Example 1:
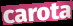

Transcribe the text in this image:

carota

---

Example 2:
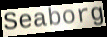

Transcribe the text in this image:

Seaborg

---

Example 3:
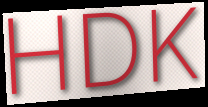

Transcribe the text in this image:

HDK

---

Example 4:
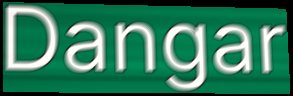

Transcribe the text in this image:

Dangar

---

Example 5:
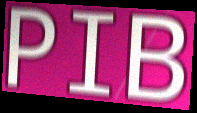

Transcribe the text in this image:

PIB